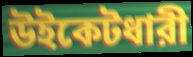
উইকেটধারী